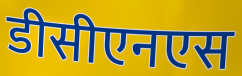
डीसीएनएस